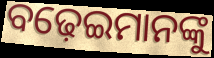
ବଢ଼େଇମାନଙ୍କୁ